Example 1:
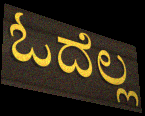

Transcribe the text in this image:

ಓದೆಲ್ಲ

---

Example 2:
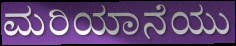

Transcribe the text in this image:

ಮರಿಯಾನೆಯು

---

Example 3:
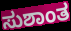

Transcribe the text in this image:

ಸುಶಾಂತ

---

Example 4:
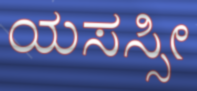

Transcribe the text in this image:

ಯಸಸ್ಸೀ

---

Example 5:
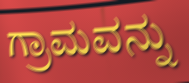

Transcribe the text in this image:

ಗ್ರಾಮವನ್ನು